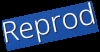
Reprod